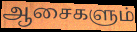
ஆசைகளும்